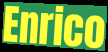
Enrico